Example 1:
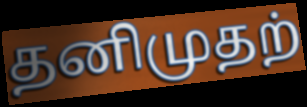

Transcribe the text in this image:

தனிமுதற்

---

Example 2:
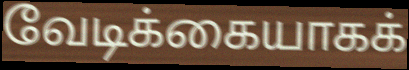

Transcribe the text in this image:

வேடிக்கையாகக்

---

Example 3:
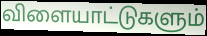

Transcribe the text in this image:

விளையாட்டுகளும்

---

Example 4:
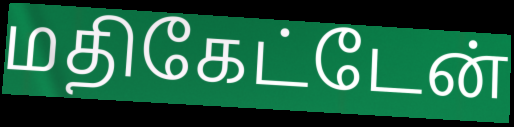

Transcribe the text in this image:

மதிகேட்டேன்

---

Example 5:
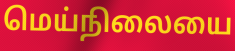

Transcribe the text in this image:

மெய்நிலையை